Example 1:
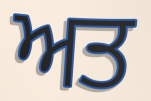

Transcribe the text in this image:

ਅਤ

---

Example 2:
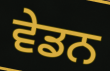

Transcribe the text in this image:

ਵੇਡਨ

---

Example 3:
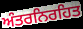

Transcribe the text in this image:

ਅੰਤਰਨਿਰਹਿਤ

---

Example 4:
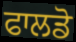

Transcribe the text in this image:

ਫਾਲਡੋ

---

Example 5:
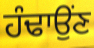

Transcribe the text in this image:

ਹੰਢਾਉਂਣ